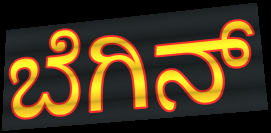
ಬೆಗಿನ್